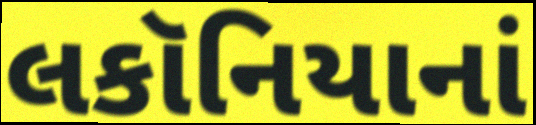
લકૉનિયાનાં